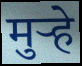
मुऱ्हे